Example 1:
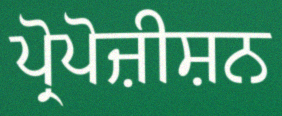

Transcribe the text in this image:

ਪ੍ਰੋਪੋਜ਼ੀਸ਼ਨ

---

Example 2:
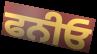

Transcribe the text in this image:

ਫਨੀਓ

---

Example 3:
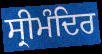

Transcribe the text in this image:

ਸ੍ਰੀਮੰਦਿਰ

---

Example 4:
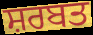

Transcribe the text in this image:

ਸ਼ਰਬਤ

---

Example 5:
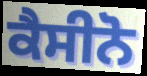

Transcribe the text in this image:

ਕੈਸੀਨੋ